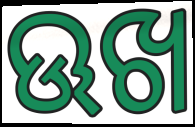
ଊଖ